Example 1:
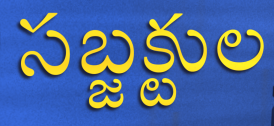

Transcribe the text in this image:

సబ్జక్టుల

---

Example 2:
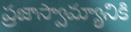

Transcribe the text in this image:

ప్రజాస్వామ్యానికి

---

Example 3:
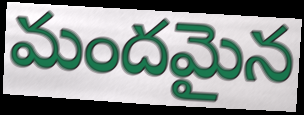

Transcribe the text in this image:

మందమైన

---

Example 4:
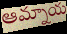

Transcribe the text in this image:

ఆమ్నాయ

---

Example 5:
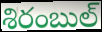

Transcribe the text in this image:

శిరంబుల్